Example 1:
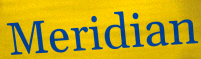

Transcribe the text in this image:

Meridian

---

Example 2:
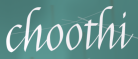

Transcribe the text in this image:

choothi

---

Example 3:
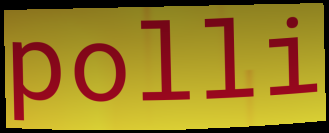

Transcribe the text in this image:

polli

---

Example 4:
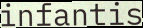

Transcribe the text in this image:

infantis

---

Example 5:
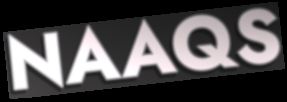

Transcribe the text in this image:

NAAQS